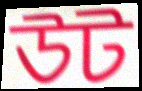
উট